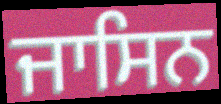
ਜਾਸਿਨ